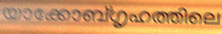
യാക്കോബ്ഗൃഹത്തിലെ